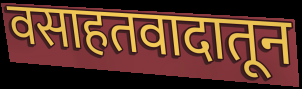
वसाहतवादातून